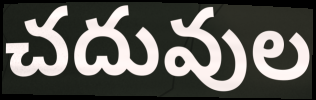
చదువుల